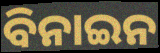
ବିନାଇନ